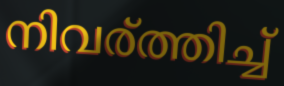
നിവര്ത്തിച്ച്